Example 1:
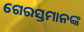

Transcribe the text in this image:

ଗେରସ୍ତମାନଙ୍କ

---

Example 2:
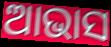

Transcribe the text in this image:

ଆଭାସ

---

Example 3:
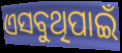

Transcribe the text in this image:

ଏସବୁଥିପାଇଁ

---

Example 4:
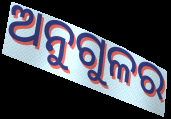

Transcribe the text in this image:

ଅନୁଗୁଳର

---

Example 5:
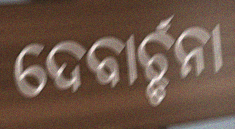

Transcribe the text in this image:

ଦେବାର୍ଚ୍ଚନା